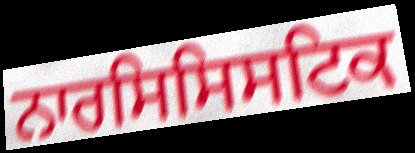
ਨਾਰਸਿਸਿਸਟਿਕ